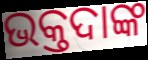
ଭକ୍ତଦାଙ୍କ